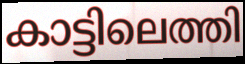
കാട്ടിലെത്തി